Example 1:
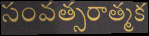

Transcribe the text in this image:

సంవత్సరాత్మక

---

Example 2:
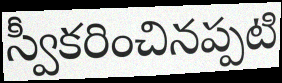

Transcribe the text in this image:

స్వీకరించినప్పటి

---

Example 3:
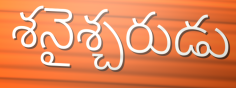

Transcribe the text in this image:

శనైశ్చరుడు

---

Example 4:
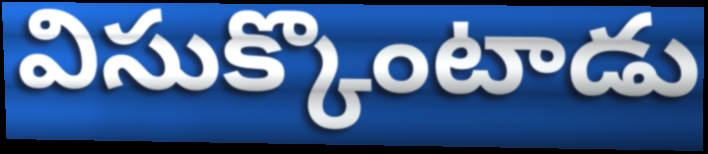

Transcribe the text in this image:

విసుక్కొంటాడు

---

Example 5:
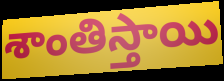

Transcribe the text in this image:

శాంతిస్తాయి